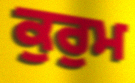
ਕੁਰੁਮ